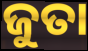
ଜୁତା